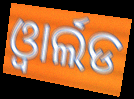
ଓ୍ବାର୍ଲଡ